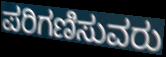
ಪರಿಗಣಿಸುವರು